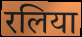
रलिया